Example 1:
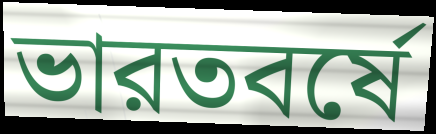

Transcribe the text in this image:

ভারতবর্ষে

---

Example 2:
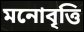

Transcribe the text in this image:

মনোবৃত্তি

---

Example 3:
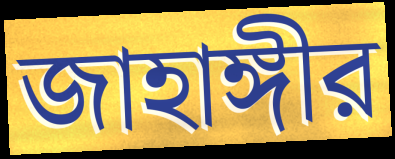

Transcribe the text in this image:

জাহাঙ্গীর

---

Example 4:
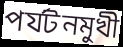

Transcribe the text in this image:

পর্যটনমুখী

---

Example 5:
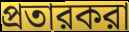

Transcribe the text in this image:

প্রতারকরা